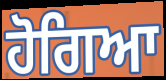
ਹੋਗਿਆ